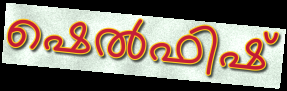
ഷെൽഫിഷ്